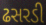
ઢસરડી